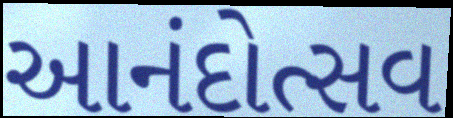
આનંદોત્સવ